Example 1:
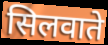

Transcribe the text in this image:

सिलवाते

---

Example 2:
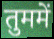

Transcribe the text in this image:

तुममें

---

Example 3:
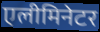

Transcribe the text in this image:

एलीमिनेटर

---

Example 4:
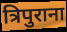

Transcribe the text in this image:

त्रिपुराना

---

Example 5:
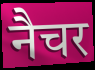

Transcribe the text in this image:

नैचर